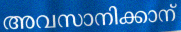
അവസാനിക്കാന്